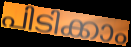
പിടിക്കാം